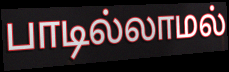
பாடில்லாமல்